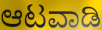
ಆಟವಾಡಿ